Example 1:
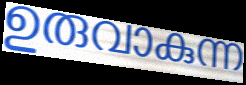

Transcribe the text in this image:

ഉരുവാകുന്ന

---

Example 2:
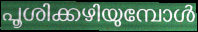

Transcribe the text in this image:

പൂശിക്കഴിയുമ്പോൾ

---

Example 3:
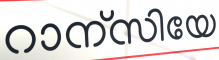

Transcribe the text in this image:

റാന്സിയേ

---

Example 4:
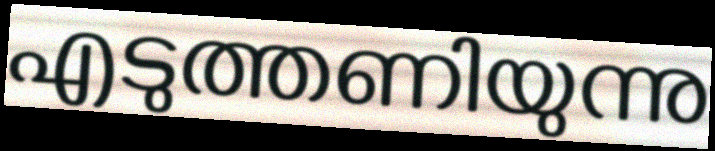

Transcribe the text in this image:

എടുത്തണിയുന്നു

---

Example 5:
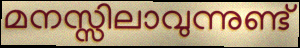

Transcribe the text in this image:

മനസ്സിലാവുന്നുണ്ട്